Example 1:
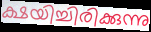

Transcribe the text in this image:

ക്ഷയിച്ചിരിക്കുന്നു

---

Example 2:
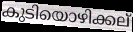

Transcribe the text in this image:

കുടിയൊഴിക്കല്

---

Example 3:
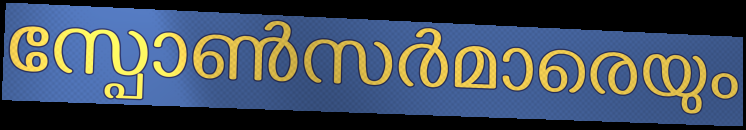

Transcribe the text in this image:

സ്പോൺസർമാരെയും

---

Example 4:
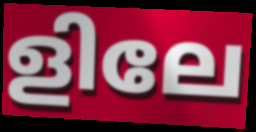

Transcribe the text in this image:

ളിലേ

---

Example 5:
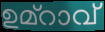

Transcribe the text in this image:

ഉമ്റാവ്